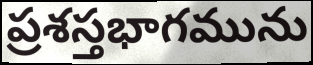
ప్రశస్తభాగమును